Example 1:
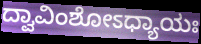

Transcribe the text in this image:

ದ್ವಾವಿಂಶೋಽಧ್ಯಾಯಃ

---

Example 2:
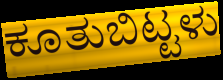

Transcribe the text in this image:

ಕೂತುಬಿಟ್ಟಳು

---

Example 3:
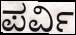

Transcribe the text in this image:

ಪರ್ವಿ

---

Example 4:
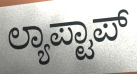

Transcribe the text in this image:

ಲ್ಯಾಪ್ಟಾಪ್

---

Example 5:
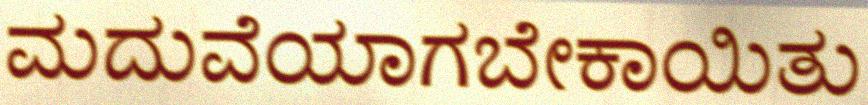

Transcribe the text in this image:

ಮದುವೆಯಾಗಬೇಕಾಯಿತು